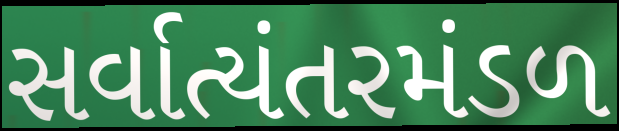
સર્વાત્યંતરમંડળ